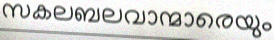
സകലബലവാന്മാരെയും